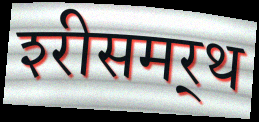
श्रीसमर्थ